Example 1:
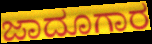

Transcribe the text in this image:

ಜಾದೂಗಾರ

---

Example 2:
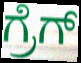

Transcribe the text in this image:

ಗ್ರೆಗ್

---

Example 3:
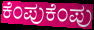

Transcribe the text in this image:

ಕೆಂಪುಕೆಂಪು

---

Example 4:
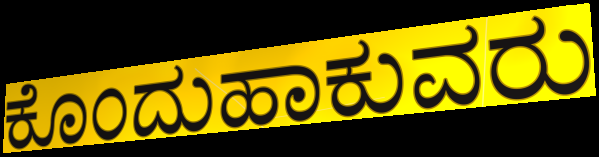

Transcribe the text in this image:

ಕೊಂದುಹಾಕುವರು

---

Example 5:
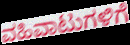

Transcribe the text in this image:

ವಹಿವಾಟುಗಳಿಗೆ